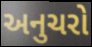
અનુચરો